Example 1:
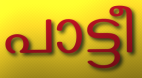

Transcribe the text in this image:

പാട്ടീ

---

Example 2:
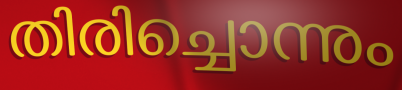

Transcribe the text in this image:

തിരിച്ചൊന്നും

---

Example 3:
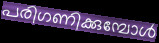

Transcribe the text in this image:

പരിഗണിക്കുമ്പോൾ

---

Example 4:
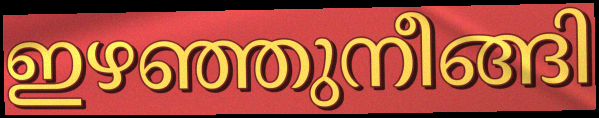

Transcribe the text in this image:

ഇഴഞ്ഞുനീങ്ങി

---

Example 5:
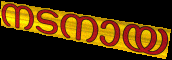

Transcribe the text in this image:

നടനായ